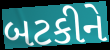
બટકીને